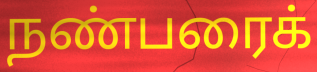
நண்பரைக்